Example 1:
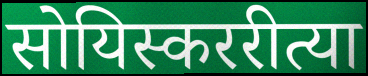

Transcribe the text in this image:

सोयिस्कररीत्या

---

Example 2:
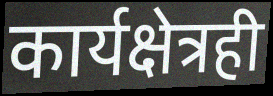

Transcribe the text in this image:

कार्यक्षेत्रही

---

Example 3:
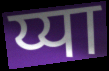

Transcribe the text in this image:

य्या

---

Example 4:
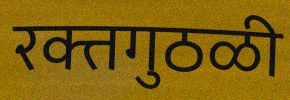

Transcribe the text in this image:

रक्तगुठळी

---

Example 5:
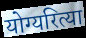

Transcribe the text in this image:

योग्यरित्या